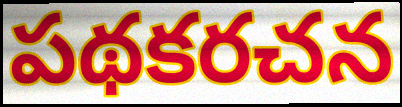
పథకరచన